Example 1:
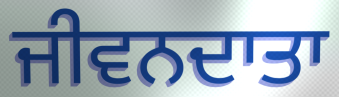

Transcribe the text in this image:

ਜੀਵਨਦਾਤਾ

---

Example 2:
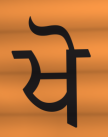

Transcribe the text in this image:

ਖੋ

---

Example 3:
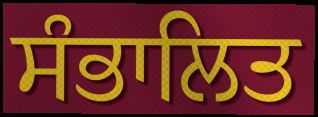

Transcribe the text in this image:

ਸੰਭਾਲਿਤ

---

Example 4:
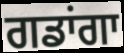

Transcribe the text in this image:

ਗਡਾਂਗਾ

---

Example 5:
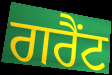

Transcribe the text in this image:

ਗਰੈਂਟ